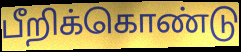
பீறிக்கொண்டு